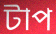
টাপ